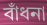
বাঁধনা